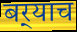
बर्याच